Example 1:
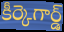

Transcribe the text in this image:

కీర్కెగార్డ్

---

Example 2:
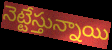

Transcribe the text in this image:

నెట్టేస్తున్నాయి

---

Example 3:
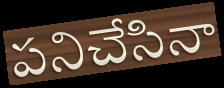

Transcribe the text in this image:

పనిచేసినా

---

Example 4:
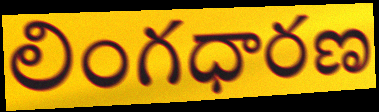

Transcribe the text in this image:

లింగధారణ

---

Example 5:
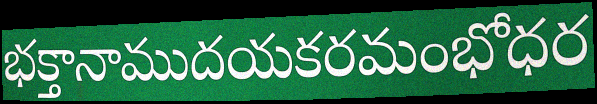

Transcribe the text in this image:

భక్తానాముదయకరమంభోధర